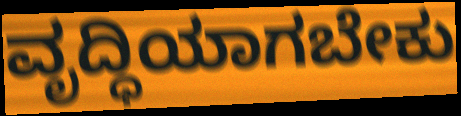
ವೃದ್ಧಿಯಾಗಬೇಕು